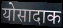
योसादाक